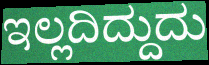
ಇಲ್ಲದಿದ್ದುದು